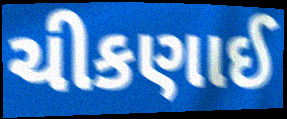
ચીકણાઈ